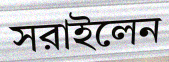
সরাইলেন